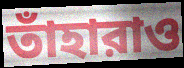
তাঁহারাও